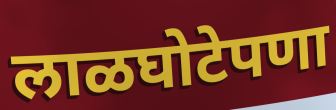
लाळघोटेपणा